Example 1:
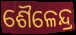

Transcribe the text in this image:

ଶୈଳେନ୍ଦ୍ର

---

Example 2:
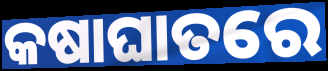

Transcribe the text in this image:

କଷାଘାତରେ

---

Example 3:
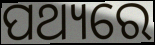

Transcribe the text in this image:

ପଥ୍ୟରେ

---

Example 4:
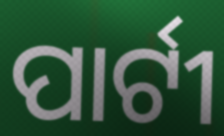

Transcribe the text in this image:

ପାର୍ଟୀ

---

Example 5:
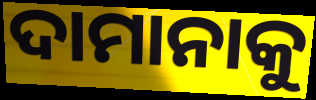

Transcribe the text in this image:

ଦାମାନାକୁ